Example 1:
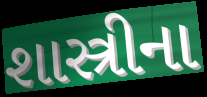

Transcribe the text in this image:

શાસ્ત્રીના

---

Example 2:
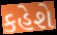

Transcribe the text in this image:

કહેશે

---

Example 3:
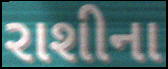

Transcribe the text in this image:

રાશીના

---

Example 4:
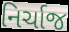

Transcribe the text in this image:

નિર્ચાજ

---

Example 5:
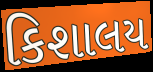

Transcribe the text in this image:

કિશાલય